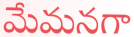
మేమనగా